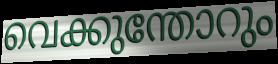
വെക്കുന്തോറും